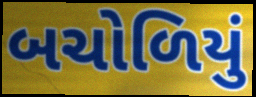
બચોળિયું